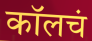
कॉलचं